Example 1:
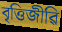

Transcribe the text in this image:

বৃত্তিজীৱি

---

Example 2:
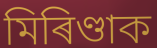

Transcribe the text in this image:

মিৰিণ্ডাক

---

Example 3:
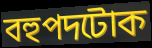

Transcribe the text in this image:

বহুপদটোক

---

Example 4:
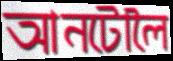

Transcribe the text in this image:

আনটোলৈ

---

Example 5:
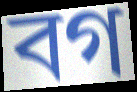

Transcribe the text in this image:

বগ